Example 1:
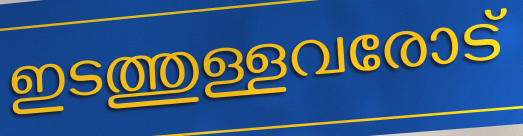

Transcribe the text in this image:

ഇടത്തുള്ളവരോട്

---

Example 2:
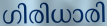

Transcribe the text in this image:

ഗിരിധാരി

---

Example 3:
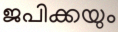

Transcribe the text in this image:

ജപിക്കയും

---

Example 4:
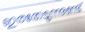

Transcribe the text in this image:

ഇരതേടുന്നുണ്ട്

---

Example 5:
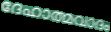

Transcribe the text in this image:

ദേഹാത്മവാദം